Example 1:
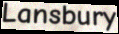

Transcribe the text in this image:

Lansbury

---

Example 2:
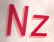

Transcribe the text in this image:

Nz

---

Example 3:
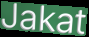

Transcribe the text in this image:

Jakat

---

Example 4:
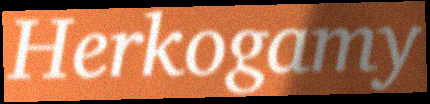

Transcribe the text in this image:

Herkogamy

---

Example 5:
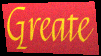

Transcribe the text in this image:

Greate